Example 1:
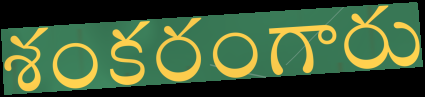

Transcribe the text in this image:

శంకరంగారు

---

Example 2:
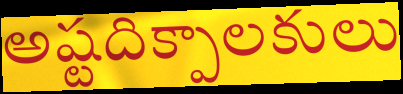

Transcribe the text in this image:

అష్టదిక్పాలకులు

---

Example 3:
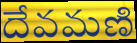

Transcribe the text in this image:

దేవమణి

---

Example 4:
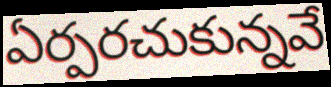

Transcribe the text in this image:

ఏర్పరచుకున్నవే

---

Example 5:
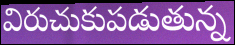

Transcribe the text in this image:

విరుచుకుపడుతున్న